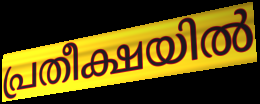
പ്രതീക്ഷയിൽ